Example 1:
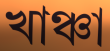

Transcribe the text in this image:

খাঞ্চা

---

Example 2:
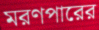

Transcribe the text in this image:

মরণপারের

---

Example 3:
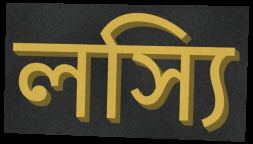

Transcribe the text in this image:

লস্যি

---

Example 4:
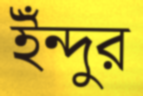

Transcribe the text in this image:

ইঁন্দুর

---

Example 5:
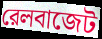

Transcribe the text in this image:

রেলবাজেট